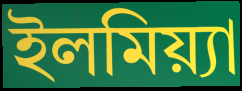
ইলমিয়্যা